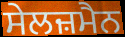
ਸੇਲਜ਼ਮੈਨ